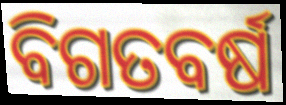
ବିଗତବର୍ଷ